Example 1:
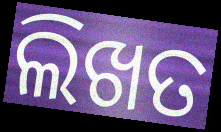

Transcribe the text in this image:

ଲିଖତ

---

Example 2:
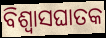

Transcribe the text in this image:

ବିଶ୍ୱାସଘାତକ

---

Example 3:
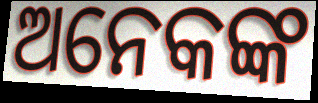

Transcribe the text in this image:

ଅନେକଙ୍କ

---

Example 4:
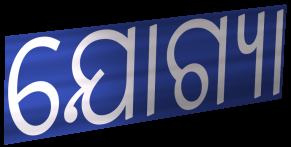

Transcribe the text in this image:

ଯୋଗ୍ୟା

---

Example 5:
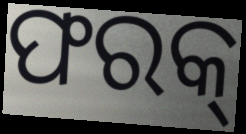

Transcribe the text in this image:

ଫରକ୍